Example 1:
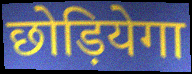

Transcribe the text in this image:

छोड़ियेगा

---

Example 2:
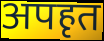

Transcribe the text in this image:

अपहृत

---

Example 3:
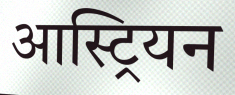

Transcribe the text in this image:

आस्ट्रियन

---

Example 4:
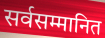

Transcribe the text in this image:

सर्वसम्मानित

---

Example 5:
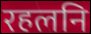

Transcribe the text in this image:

रहलनि